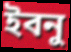
ইবনু